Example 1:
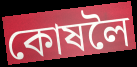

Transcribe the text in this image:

কোষলৈ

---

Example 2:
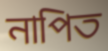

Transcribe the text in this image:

নাপিত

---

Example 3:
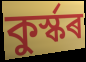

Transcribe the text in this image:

কুৰ্স্কৰ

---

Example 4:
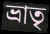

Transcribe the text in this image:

ভ্ৰাতৃ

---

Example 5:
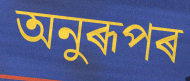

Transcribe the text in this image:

অনুৰূপৰ